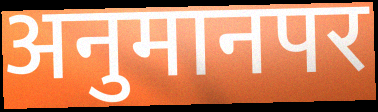
अनुमानपर